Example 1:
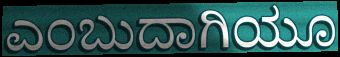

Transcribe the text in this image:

ಎಂಬುದಾಗಿಯೂ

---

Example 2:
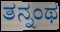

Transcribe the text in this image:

ತನ್ನಂಥ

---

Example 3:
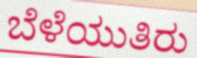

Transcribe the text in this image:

ಬೆಳೆಯುತಿರು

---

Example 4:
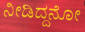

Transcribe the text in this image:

ನೀಡಿದ್ದನೋ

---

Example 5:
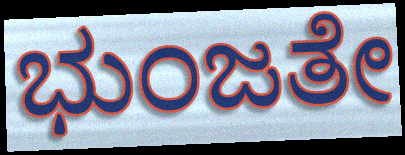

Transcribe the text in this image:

ಭುಂಜತೇ